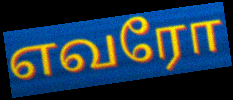
எவரோ